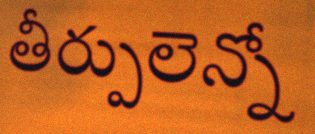
తీర్పులెన్నో